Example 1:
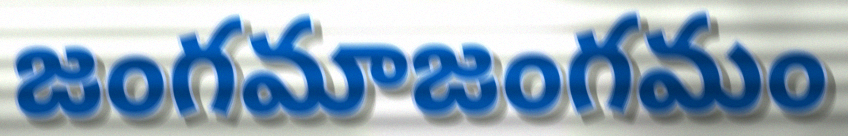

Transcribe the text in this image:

జంగమాజంగమం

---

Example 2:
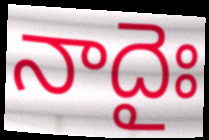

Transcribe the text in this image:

నాదైః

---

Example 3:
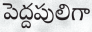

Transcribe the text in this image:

పెద్దపులిగా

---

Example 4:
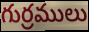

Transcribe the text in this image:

గుర్రములు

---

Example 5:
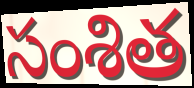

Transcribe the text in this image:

సంశిత